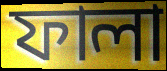
ফালা